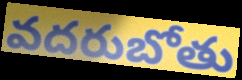
వదరుబోతు